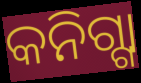
କନିଗ୍ଗା